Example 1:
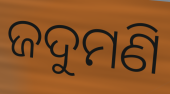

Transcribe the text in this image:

ଜଦୁମଣି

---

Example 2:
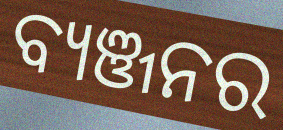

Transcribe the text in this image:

ବ୍ୟଞ୍ଜନର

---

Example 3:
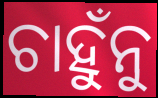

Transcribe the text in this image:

ଚାହୁଁନୁ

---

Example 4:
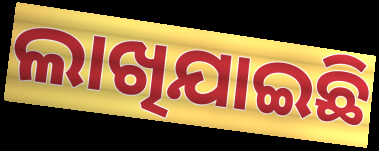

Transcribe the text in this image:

ଲାଖିଯାଇଛି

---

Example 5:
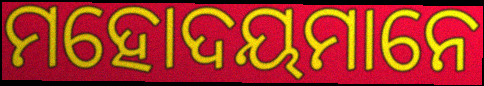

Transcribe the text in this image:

ମହୋଦୟମାନେ